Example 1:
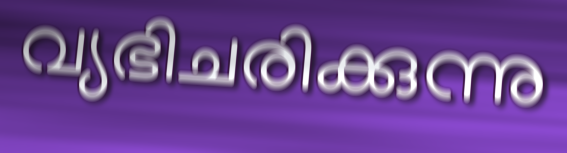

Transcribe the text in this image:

വ്യഭിചരിക്കുന്നു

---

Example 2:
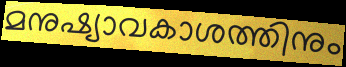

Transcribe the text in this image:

മനുഷ്യാവകാശത്തിനും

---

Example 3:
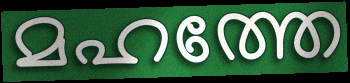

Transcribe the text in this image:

മഹത്തേ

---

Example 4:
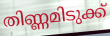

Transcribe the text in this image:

തിണ്ണമിടുക്ക്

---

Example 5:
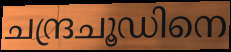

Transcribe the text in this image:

ചന്ദ്രചൂഡിനെ